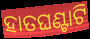
ହାତଘଣ୍ଟାଟି